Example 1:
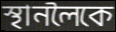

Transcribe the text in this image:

স্থানলৈকে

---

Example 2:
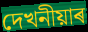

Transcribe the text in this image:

দেখনীয়াৰ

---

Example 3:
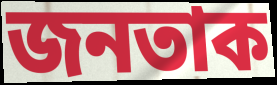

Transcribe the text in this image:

জনতাক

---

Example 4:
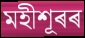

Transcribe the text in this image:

মহীশূৰৰ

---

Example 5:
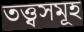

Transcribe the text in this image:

তত্ত্বসমূহ